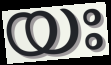
യഃ